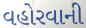
વહોરવાની